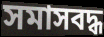
সমাসবদ্ধ